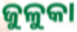
ଜୁଳୁକା